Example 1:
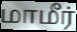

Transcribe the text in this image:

மாமீர்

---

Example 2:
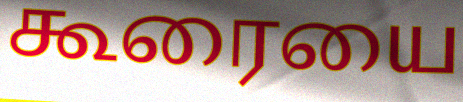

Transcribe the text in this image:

கூரையை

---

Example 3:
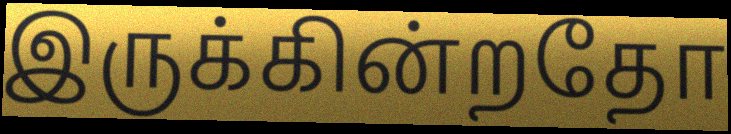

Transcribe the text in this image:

இருக்கின்றதோ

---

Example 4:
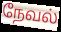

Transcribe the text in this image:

நேவல்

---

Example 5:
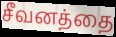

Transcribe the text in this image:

சீவனத்தை